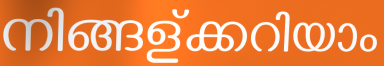
നിങ്ങള്ക്കറിയാം